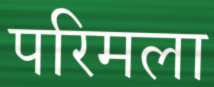
परिमला